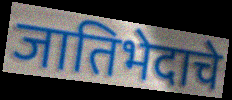
जातिभेदाचे